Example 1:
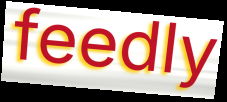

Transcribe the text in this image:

feedly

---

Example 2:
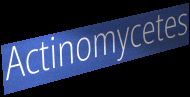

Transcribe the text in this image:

Actinomycetes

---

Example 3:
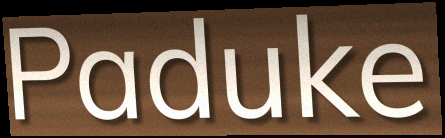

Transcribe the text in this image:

Paduke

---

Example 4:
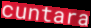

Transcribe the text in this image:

cuntara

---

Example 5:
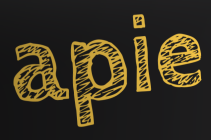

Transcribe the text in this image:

apie